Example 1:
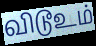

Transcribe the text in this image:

விடூஉம்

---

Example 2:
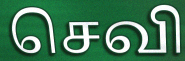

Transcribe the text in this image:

செவி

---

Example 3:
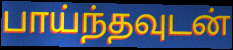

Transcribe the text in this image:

பாய்ந்தவுடன்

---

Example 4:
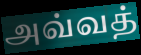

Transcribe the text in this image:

அவ்வத்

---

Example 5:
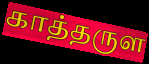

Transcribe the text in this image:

காத்தருள